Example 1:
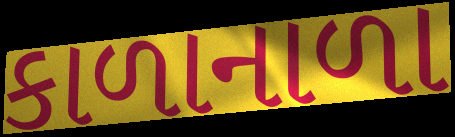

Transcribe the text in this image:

કાળાનાળા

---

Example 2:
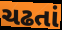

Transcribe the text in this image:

ચઢતાં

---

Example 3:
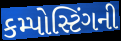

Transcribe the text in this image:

કમ્પોસ્ટિંગની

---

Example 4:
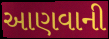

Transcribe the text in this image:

આણવાની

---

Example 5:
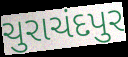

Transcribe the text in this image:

ચુરાચંદપુર